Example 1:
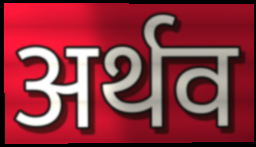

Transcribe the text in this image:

अर्थव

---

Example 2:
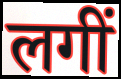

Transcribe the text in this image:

लगीं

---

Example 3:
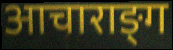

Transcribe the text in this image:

आचाराङ्ग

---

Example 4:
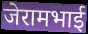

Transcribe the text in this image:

जेरामभाई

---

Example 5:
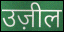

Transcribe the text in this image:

उज़ील